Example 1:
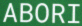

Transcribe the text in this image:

ABORI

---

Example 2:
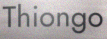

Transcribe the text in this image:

Thiongo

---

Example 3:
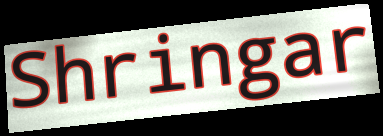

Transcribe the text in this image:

Shringar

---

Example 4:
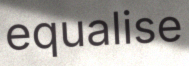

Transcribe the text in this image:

equalise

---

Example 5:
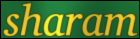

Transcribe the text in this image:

sharam